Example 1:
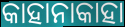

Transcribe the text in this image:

କାହାନାକାହା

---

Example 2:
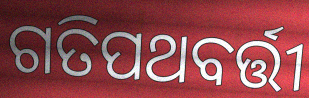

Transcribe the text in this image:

ଗତିପଥବର୍ତ୍ତୀ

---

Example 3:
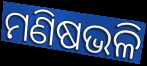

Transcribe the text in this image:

ମଣିଷଭଳି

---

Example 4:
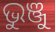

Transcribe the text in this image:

ଭୁଞ୍ଜୁ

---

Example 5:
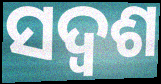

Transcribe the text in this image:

ସଦ୍ଵଶ